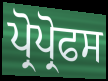
ਪ੍ਰੋਪ੍ਰੋਫਸ